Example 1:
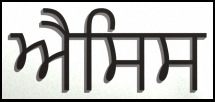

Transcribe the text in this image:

ਐਸਿਸ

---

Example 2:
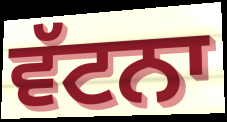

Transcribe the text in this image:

ਵੱਟਨਾ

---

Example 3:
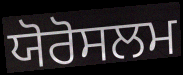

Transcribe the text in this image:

ਯੋਰੋਸਲਮ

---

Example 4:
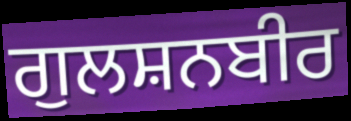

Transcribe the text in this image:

ਗੁਲਸ਼ਨਬੀਰ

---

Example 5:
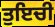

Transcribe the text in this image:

ਤੁਇਚੀ